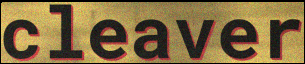
cleaver